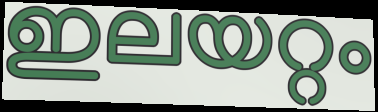
ഇലയറ്റം